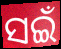
ସଇଁ